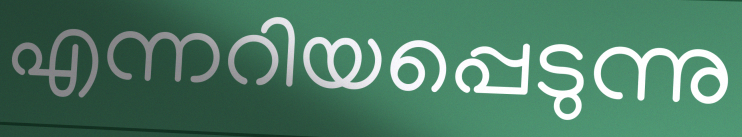
എന്നറിയപ്പെടുന്നു